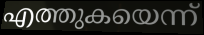
എത്തുകയെന്ന്